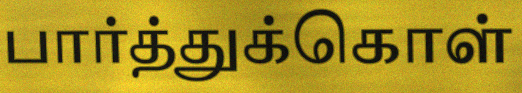
பார்த்துக்கொள்